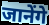
जानेंगे